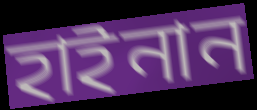
হাইনান